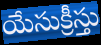
యేసుక్రీస్తు